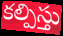
కల్పిస్తు